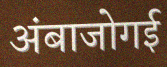
अंबाजोगई